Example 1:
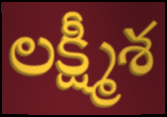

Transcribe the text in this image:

లక్ష్మీశ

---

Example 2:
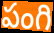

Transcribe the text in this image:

పంగి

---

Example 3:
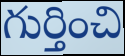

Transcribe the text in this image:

గుర్తించి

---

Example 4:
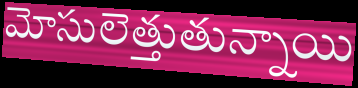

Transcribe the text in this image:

మోసులెత్తుతున్నాయి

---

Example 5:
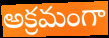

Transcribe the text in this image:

అక్రమంగా